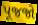
પૂજજો